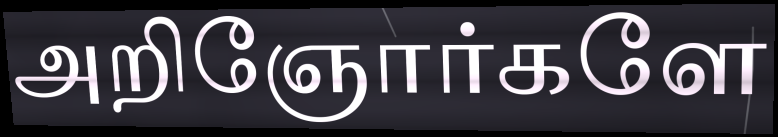
அறிஞோர்களே